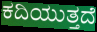
ಕದಿಯುತ್ತದೆ